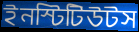
ইনস্টিটিউটস